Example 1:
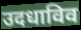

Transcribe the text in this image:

उदधाविव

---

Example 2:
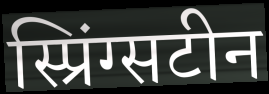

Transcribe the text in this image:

स्प्रिंग्सटीन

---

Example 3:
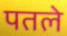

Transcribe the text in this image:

पतले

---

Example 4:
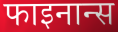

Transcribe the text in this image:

फाइनान्स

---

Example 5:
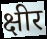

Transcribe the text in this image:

क्षीर